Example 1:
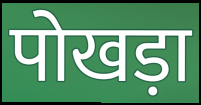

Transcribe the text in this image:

पोखड़ा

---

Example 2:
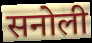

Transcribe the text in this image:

सनोली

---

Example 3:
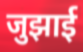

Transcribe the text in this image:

जुझाई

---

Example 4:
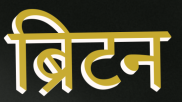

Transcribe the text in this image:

ब्रिटन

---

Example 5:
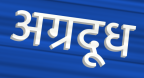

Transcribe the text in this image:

अग्रदूध